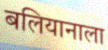
बलियानाला